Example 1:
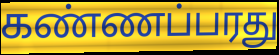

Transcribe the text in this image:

கண்ணப்பரது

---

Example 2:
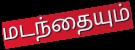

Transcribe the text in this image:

மடந்தையும்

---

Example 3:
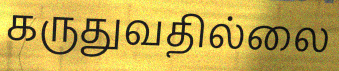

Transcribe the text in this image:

கருதுவதில்லை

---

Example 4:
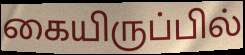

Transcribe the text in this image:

கையிருப்பில்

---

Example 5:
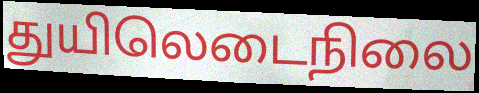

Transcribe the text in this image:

துயிலெடைநிலை